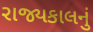
રાજ્યકાલનું